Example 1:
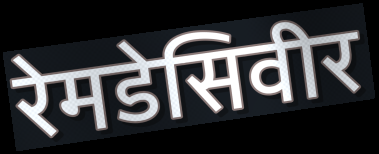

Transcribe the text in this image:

रेमडेसिवीर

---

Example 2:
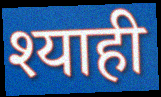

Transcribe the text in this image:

श्याही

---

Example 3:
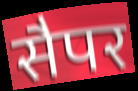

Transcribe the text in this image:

सैपर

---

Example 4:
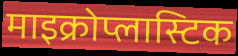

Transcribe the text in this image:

माइक्रोप्लास्टिक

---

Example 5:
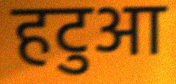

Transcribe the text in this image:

हटुआ